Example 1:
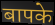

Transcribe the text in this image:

बापके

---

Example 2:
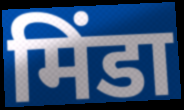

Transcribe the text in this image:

मिंडा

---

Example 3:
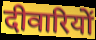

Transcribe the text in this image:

दीवारियों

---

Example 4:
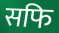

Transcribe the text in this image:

सफि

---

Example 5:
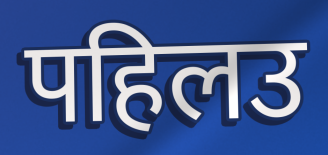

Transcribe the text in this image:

पहिलउ